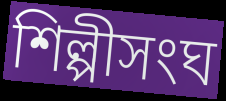
শিল্পীসংঘ